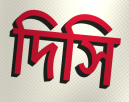
দিসি